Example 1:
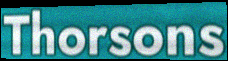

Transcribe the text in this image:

Thorsons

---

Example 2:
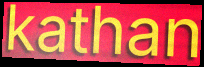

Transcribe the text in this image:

kathan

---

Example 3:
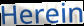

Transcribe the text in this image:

Herein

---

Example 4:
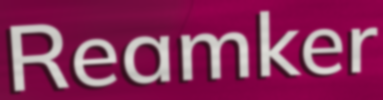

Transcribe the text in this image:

Reamker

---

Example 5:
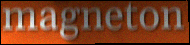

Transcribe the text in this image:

magneton